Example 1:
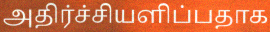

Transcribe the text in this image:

அதிர்ச்சியளிப்பதாக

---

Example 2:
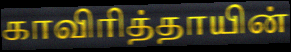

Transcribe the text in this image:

காவிரித்தாயின்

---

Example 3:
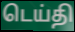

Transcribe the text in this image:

டெய்தி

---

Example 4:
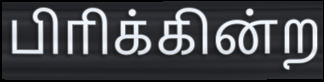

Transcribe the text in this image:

பிரிக்கின்ற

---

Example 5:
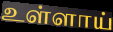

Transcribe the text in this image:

உள்ளாய்